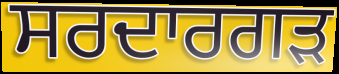
ਸਰਦਾਰਗੜ